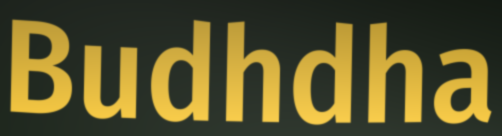
Budhdha